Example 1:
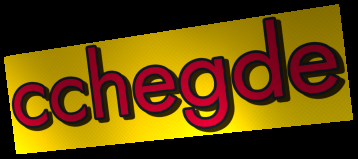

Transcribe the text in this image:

cchegde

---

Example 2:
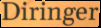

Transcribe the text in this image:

Diringer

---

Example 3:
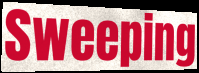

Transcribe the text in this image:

Sweeping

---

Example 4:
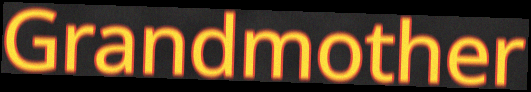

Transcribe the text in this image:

Grandmother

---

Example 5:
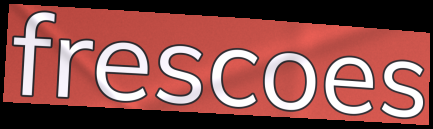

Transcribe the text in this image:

frescoes